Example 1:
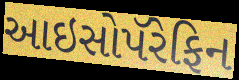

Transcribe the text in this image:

આઇસોપૅરેફિન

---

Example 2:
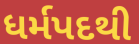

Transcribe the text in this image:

ધર્મપદથી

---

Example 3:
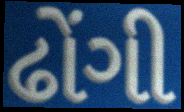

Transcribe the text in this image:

ઢોંગી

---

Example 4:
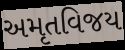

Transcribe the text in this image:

અમૃતવિજય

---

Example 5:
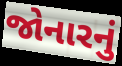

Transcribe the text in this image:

જોનારનું